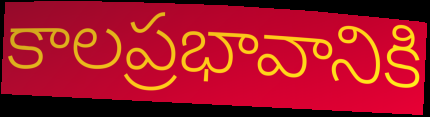
కాలప్రభావానికి